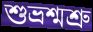
শুভ্রশ্মশ্রু